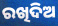
ରଖିଦିଅ